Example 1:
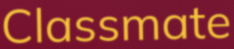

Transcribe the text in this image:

Classmate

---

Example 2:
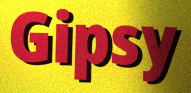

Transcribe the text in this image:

Gipsy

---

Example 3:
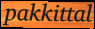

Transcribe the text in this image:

pakkittal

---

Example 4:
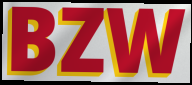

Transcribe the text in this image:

BZW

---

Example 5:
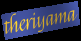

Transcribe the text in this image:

theriyama